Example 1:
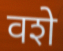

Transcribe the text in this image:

वशे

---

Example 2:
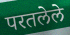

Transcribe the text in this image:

परतलेले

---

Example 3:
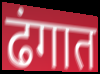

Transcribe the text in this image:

ढंगात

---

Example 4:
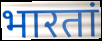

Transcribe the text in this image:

भारतां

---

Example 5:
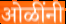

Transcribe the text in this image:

ओळींनी